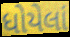
ધોયેલાં